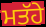
ਮਤੱਹੇ